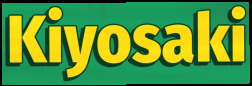
Kiyosaki